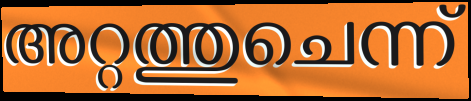
അറ്റത്തുചെന്ന്